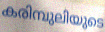
കരിമ്പുലിയുടെ